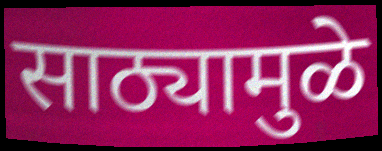
साठ्यामुळे